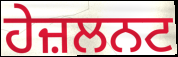
ਹੇਜ਼ਲਨਟ